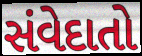
સંવેદાતો